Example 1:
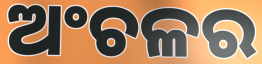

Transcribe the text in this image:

ଅଂଚଳର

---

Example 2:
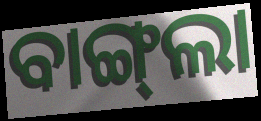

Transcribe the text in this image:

ବାଙ୍ଗ୍‍ଲା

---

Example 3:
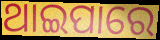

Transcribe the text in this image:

ଥାଇପାରେ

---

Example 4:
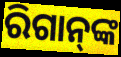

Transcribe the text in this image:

ରିଗାନ୍‌ଙ୍କ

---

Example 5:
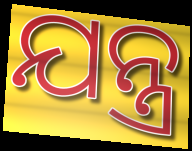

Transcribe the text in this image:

ଯନ୍ତ୍ର